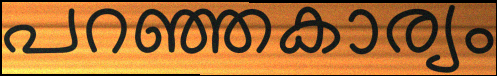
പറഞ്ഞകാര്യം